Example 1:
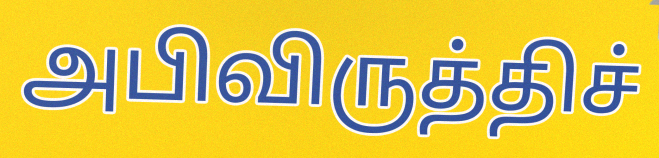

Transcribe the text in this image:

அபிவிருத்திச்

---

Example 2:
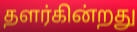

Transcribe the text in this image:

தளர்கின்றது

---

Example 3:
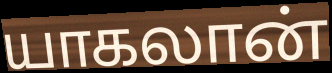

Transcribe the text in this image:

யாகலான்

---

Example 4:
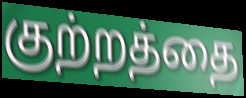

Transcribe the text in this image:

குற்றத்தை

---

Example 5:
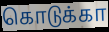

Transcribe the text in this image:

கொடுக்கா